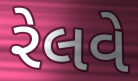
રેલવે